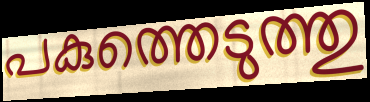
പകുത്തെടുത്തു